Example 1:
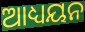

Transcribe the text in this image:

ଆଧ୍ୟୟନ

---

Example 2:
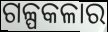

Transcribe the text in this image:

ଗଳ୍ପକଳାର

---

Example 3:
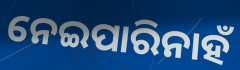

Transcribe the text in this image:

ନେଇପାରିନାହଁ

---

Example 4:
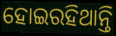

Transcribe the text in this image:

ହୋଇରହିଥାନ୍ତି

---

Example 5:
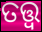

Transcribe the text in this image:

ତତ୍ତ୍ବ